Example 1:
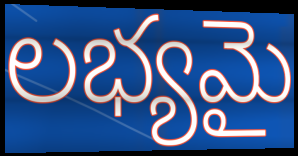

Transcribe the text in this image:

లభ్యమై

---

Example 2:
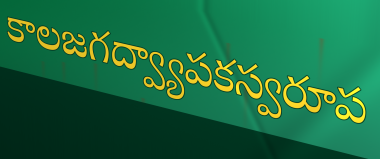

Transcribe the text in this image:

కాలజగద్వ్యాపకస్వరూప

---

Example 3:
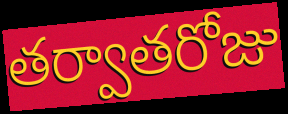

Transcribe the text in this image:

తర్వాతరోజు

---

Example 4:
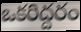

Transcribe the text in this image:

ఒకరిద్దరం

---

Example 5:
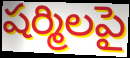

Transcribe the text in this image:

షర్మిలపై